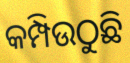
କମ୍ପିଉଠୁଛି